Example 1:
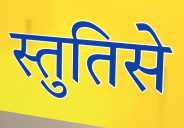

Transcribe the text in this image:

स्तुतिसे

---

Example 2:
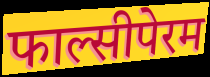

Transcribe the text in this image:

फाल्सीपेरम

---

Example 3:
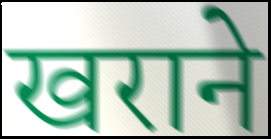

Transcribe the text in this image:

खराने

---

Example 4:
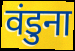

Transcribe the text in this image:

वंडुना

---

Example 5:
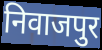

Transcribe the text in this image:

निवाजपुर